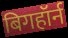
बिगहॉर्न